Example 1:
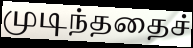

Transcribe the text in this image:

முடிந்ததைச்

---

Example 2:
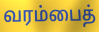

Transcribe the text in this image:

வரம்பைத்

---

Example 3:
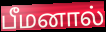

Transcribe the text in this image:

பீமனால்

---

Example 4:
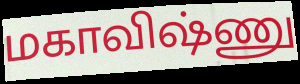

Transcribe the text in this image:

மகாவிஷ்ணு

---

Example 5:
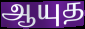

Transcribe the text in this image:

ஆயுத